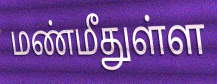
மண்மீதுள்ள